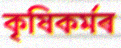
কৃষিকৰ্মৰ